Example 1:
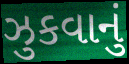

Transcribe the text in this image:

ઝુકવાનું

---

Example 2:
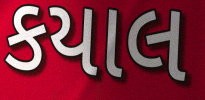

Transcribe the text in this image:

કયાલ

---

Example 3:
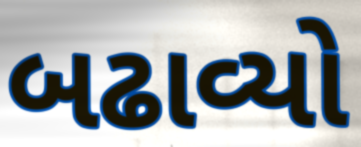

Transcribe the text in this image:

બઢાવ્યો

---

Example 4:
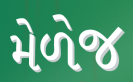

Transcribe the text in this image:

મેળેજ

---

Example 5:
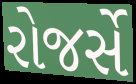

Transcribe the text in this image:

રોજર્સે